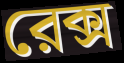
রেক্স